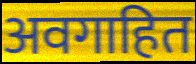
अवगाहित